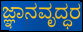
ಜ್ಞಾನವೃದ್ಧರ